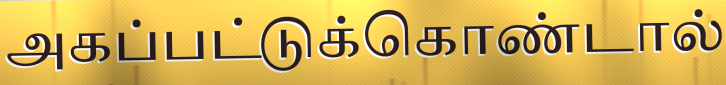
அகப்பட்டுக்கொண்டால்